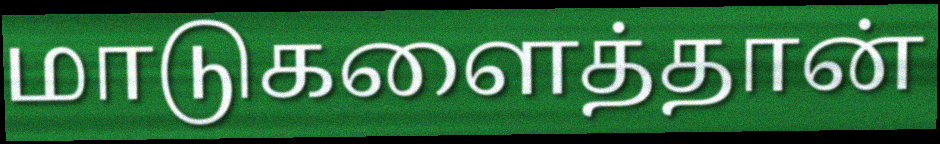
மாடுகளைத்தான்